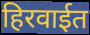
हिरवाईत